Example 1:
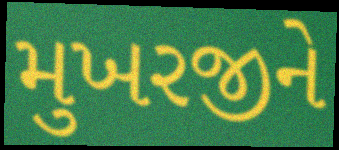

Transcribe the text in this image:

મુખરજીને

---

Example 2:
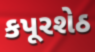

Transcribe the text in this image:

કપૂરશેઠ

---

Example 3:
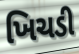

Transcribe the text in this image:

ખિચડી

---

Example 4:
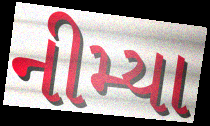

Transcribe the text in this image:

નીમ્યા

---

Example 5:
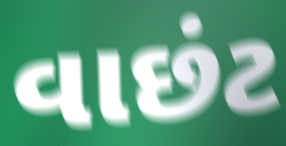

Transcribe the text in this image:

વાછંટ